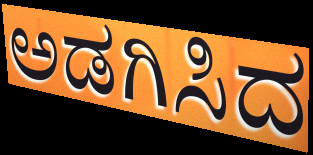
ಅಡಗಿಸಿದ